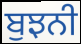
ਬੁਝਨੀ